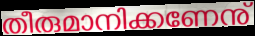
തീരുമാനിക്കണേനു്